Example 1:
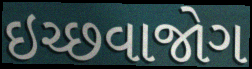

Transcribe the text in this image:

ઇચ્છવાજોગ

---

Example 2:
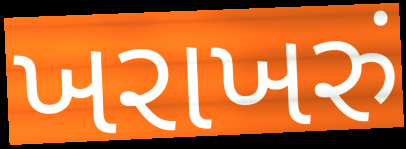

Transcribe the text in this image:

ખરાખરું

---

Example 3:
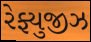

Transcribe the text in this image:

રેફ્યુજીઝ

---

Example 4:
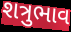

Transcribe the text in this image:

શત્રુભાવ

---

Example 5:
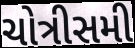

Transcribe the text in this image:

ચોત્રીસમી